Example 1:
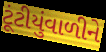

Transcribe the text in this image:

ટૂંટીયુંવાળીને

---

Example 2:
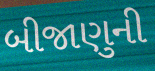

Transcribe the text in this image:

બીજાણુની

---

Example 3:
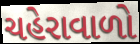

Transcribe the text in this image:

ચહેરાવાળો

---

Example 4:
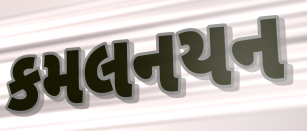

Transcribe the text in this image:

કમલનયન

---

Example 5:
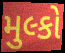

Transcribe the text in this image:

મુલ્કો